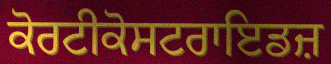
ਕੋਰਟੀਕੋਸਟਰਾਇਡਜ਼